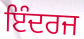
ਇੰਦਰਜ